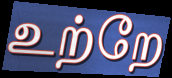
உற்றே